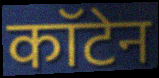
कॉटेन